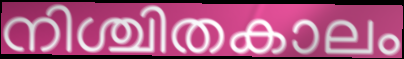
നിശ്ചിതകാലം